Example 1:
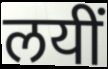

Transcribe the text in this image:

लयीं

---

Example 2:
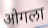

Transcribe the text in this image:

ओगला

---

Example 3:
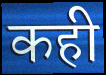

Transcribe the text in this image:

कही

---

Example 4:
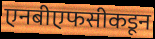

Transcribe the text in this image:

एनबीएफसीकडून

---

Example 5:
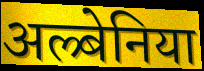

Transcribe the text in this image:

अल्बेनिया